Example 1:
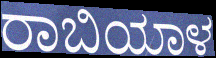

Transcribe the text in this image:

ರಾಬಿಯಾಳ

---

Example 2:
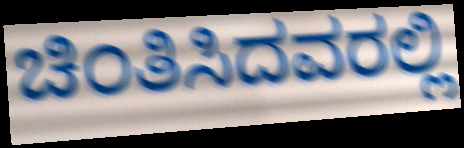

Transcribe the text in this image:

ಚಿಂತಿಸಿದವರಲ್ಲಿ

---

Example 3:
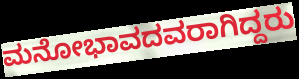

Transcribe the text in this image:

ಮನೋಭಾವದವರಾಗಿದ್ದರು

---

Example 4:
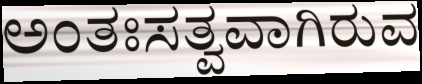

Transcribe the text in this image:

ಅಂತಃಸತ್ವವಾಗಿರುವ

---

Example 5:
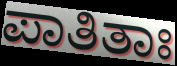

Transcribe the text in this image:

ಪಾತಿತಾಃ